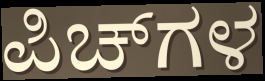
ಪಿಚ್‌ಗಳ